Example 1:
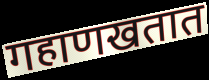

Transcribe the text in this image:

गहाणखतात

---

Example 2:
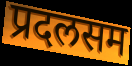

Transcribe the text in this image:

प्रदलसम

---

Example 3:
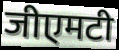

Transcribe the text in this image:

जीएमटी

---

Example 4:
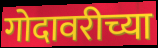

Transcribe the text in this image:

गोदावरीच्या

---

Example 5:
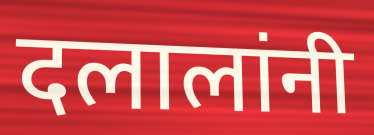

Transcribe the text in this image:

दलालांनी